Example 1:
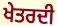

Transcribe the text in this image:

ਖੇਤਰਦੀ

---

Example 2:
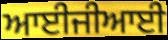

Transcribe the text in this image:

ਆਈਜੀਆਈ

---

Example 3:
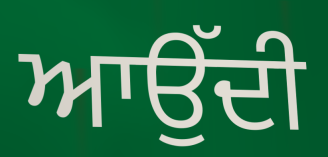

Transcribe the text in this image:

ਆਉੱਦੀ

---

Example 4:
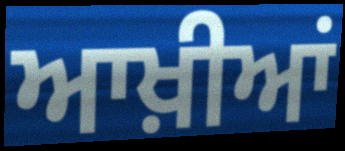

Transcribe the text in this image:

ਆਖ਼ੀਆਂ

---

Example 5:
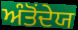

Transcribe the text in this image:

ਅੰਤੋਂਦੇਯ